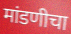
मांडणीचा